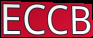
ECCB